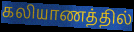
கலியாணத்தில்